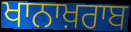
ਖਾਨਾਖ਼ਰਾਬ